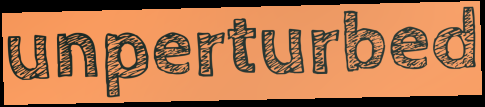
unperturbed